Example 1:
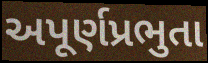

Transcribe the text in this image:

અપૂર્ણપ્રભુતા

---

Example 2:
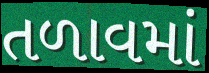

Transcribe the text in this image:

તળાવમાં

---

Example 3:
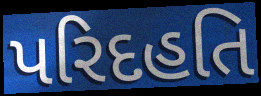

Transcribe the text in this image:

પરિદહતિ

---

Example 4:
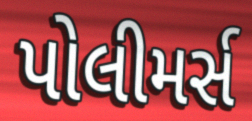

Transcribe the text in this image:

પોલીમર્સ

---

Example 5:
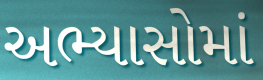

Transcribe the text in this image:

અભ્યાસોમાં